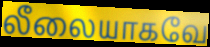
லீலையாகவே